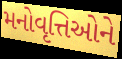
મનોવૃત્તિઓને